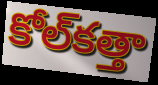
కోల్‌కత్తా